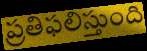
ప్రతిఫలిస్తుంది